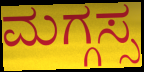
ಮಗ್ಗಸ್ಸ